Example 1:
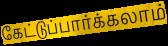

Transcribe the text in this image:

கேட்டுப்பார்க்கலாம்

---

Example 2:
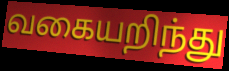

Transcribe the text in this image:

வகையறிந்து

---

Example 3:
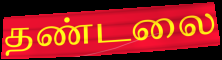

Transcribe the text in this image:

தண்டலை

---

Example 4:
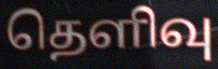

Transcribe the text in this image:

தெளிவு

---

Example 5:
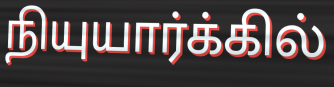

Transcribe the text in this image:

நியுயார்க்கில்